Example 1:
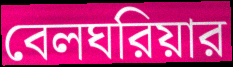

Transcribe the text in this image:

বেলঘরিয়ার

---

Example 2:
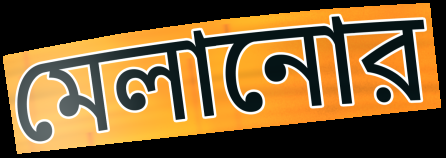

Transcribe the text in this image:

মেলানোর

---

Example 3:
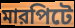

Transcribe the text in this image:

মারপিটে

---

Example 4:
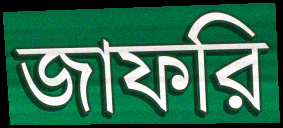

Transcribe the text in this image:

জাফরি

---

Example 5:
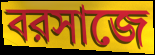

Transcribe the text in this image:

বরসাজে